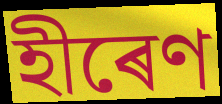
হীৰেণ